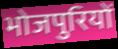
भोजपुरियों